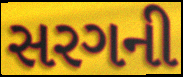
સરગની